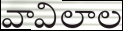
వావిలాల